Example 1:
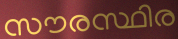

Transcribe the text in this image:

സൗരസ്ഥിര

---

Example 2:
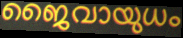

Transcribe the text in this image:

ജൈവായുധം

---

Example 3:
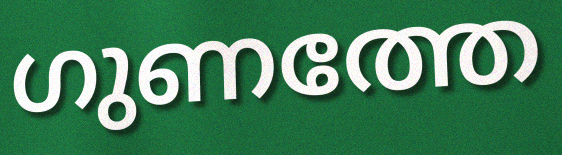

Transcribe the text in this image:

ഗുണത്തേ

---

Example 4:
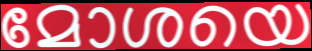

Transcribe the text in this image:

മോശയെ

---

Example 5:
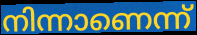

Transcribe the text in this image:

നിന്നാണെന്ന്